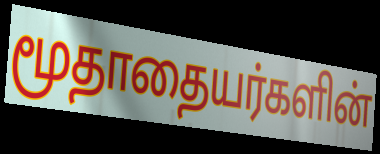
மூதாதையர்களின்